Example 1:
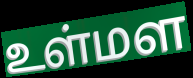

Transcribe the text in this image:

உள்மள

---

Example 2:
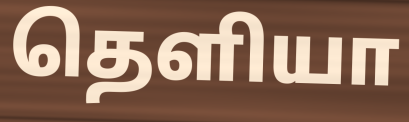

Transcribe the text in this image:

தெளியா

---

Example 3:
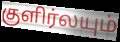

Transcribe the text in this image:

குளிர்லயும்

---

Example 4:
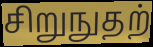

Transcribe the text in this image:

சிறுநுதற்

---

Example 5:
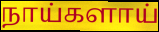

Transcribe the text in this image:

நாய்களாய்